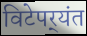
विटेपर्यंत